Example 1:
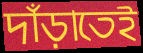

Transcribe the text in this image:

দাঁড়াতেই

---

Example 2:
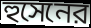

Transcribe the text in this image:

হুসেনের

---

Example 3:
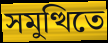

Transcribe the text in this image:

সমুত্থিতে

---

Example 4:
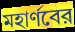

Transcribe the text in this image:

মহার্ণবের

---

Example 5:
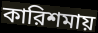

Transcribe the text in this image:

কারিশমায়